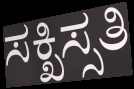
ಸಕ್ಖಿಸ್ಸತಿ